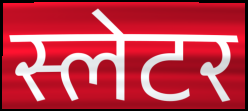
स्लेटर